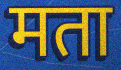
मता